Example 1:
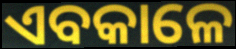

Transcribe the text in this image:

ଏବକାଳେ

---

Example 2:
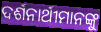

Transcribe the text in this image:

ଦର୍ଶନାର୍ଥୀମାନଙ୍କୁ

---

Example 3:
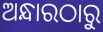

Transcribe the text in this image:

ଅନ୍ଧାରଠାରୁ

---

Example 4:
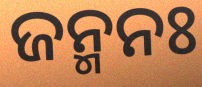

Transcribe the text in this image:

ଜନ୍ମନଃ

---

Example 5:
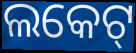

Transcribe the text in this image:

ଲକେଟ୍